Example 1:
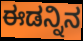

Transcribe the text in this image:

ಈಡನ್ನಿನ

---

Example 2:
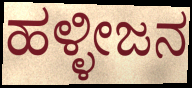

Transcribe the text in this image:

ಹಳ್ಳೀಜನ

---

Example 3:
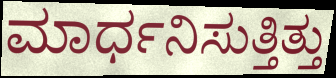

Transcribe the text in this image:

ಮಾರ್ಧನಿಸುತ್ತಿತ್ತು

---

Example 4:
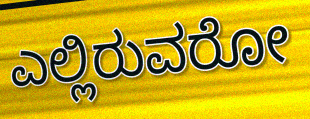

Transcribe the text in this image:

ಎಲ್ಲಿರುವರೋ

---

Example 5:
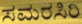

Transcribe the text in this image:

ಸಮರಸಿರಿ